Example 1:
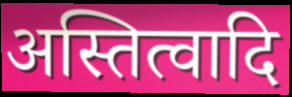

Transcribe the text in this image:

अस्तित्वादि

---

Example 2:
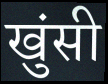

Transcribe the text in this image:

खुंसी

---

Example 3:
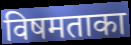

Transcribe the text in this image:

विषमताका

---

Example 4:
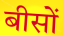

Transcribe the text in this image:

बीसों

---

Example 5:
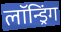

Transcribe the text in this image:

लॉन्ड्रिंग